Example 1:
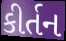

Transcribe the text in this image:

કીર્તન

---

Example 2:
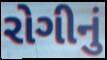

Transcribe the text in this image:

રોગીનું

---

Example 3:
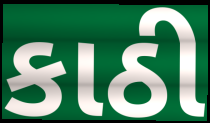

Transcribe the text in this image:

કાઠી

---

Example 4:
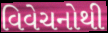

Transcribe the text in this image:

વિવેચનોથી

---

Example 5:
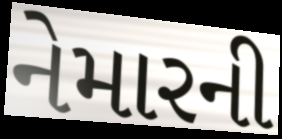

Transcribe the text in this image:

નેમારની